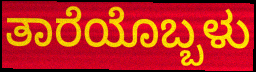
ತಾರೆಯೊಬ್ಬಳು